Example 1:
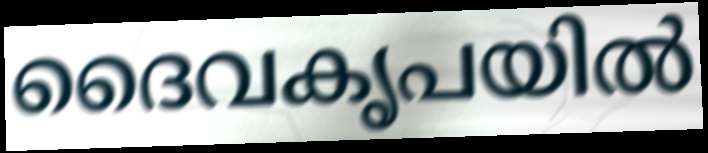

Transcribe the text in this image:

ദൈവകൃപയിൽ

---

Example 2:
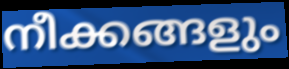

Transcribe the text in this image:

നീക്കങ്ങളും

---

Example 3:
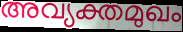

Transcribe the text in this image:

അവ്യക്തമുഖം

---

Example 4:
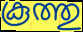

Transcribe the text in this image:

കൂത്തു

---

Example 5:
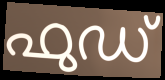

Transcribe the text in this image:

ഫുഡ്